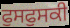
ਫੁਸਫੁਸਕੀ